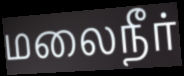
மலைநீர்